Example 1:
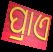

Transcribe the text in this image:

ପ୍ରାଏ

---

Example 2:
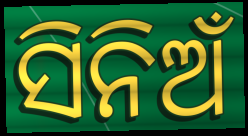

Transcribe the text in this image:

ସିନିଅଁ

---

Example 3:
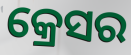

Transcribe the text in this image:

କ୍ରେସର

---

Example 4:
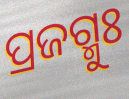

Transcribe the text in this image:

ପ୍ରଜଗ୍ମୁଃ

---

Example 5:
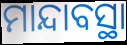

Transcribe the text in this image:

ମାନ୍ଦାବସ୍ଥା